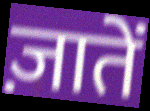
ज़ातें